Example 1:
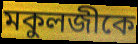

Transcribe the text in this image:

মকুলজীকে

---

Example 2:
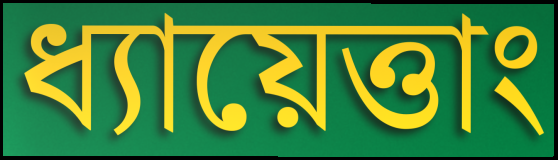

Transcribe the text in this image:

ধ্যায়েত্তাং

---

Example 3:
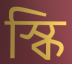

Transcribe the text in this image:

স্কি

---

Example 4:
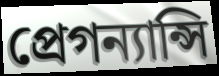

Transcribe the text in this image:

প্রেগন্যান্সি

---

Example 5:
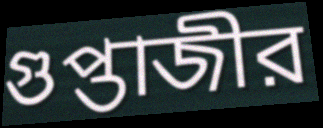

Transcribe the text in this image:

গুপ্তাজীর